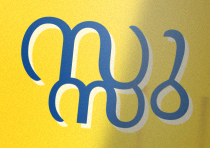
സ്സു